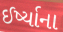
ઈર્ષ્યાના